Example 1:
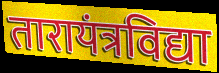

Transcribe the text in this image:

तारायंत्रविद्या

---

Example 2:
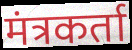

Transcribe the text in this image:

मंत्रकर्ता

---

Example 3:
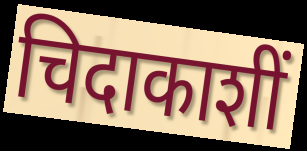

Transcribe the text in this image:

चिदाकाशीं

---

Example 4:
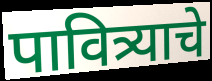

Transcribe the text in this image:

पावित्र्याचे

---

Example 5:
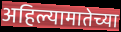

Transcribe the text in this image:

अहिल्यामातेच्या